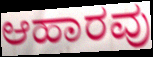
ಆಹಾರವು